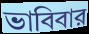
ভাবিবার